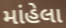
માંહેલા